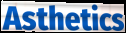
Asthetics